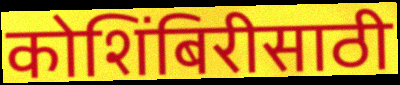
कोशिंबिरीसाठी